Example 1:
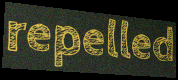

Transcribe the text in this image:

repelled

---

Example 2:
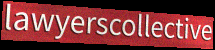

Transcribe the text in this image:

lawyerscollective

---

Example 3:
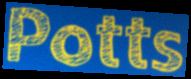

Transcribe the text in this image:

Potts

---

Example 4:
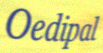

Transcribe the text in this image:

Oedipal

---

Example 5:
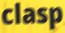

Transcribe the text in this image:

clasp